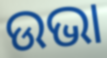
ଉଭା